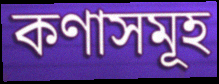
কণাসমূহ